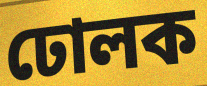
ঢোলক